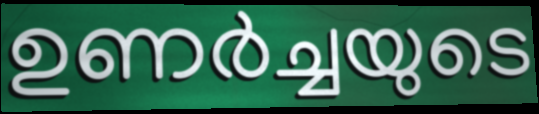
ഉണർച്ചയുടെ